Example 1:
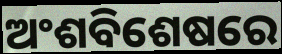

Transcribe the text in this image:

ଅଂଶବିଶେଷରେ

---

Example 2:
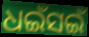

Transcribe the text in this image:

ଧଇଁସଇଁ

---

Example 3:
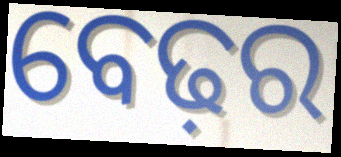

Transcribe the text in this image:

ବେଢ଼ର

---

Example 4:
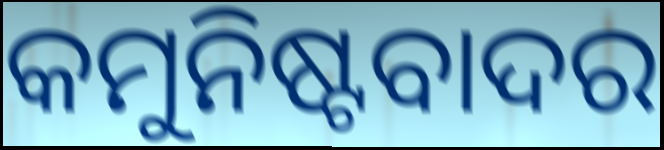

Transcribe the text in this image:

କମୁନିଷ୍ଟବାଦର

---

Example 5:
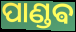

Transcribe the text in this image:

ପାଣ୍ଡଵ